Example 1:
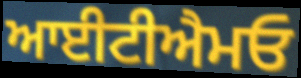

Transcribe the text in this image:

ਆਈਟੀਐਮਓ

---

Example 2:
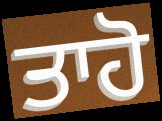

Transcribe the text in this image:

ਤਾਹੋ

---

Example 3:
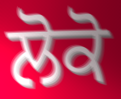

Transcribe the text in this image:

ਲੋਕੋ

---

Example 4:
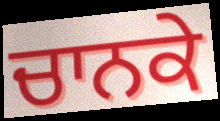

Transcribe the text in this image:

ਚਾਨਕੇ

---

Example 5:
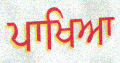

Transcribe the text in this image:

ਪਾਖਿਆ